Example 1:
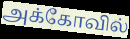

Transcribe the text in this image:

அக்கோவில்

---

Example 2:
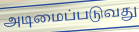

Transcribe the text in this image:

அடிமைப்படுவது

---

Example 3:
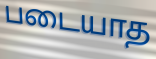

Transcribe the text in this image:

படையாத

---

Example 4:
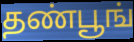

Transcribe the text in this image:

தண்பூங்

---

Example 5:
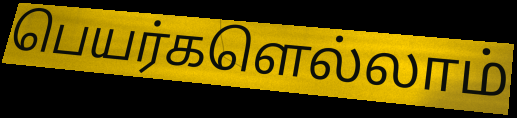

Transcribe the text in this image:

பெயர்களெல்லாம்